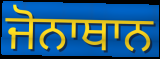
ਜੋਨਾਥਾਨ